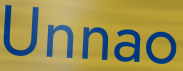
Unnao